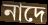
নাদে